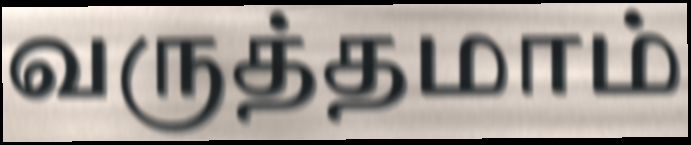
வருத்தமாம்